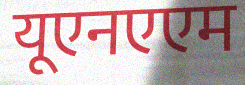
यूएनएएम